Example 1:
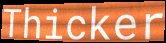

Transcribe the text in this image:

Thicker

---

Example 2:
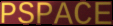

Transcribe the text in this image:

PSPACE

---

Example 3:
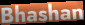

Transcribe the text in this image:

Bhashan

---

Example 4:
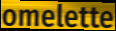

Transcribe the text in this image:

omelette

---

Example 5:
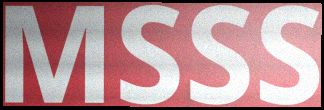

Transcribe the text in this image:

MSSS